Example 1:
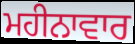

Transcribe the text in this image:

ਮਹੀਨਾਵਾਰ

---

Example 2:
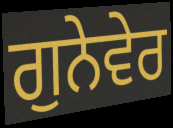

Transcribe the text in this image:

ਗੁਨੇਵੇਰ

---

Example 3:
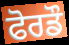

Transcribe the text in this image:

ਫੋਰਡੌ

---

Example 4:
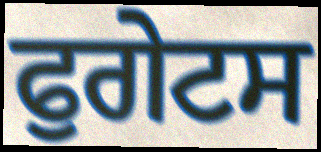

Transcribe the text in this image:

ਫੁਗੇਟਸ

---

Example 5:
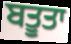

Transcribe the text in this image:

ਬਤੂਤਾ